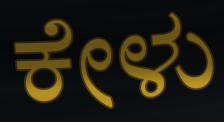
ಕೇಳು